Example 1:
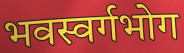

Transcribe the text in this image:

भवस्वर्गभोग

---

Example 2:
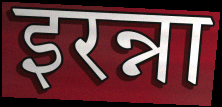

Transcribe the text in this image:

इरन्ना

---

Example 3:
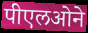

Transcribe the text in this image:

पीएलओने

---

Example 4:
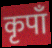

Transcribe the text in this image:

कृपाँ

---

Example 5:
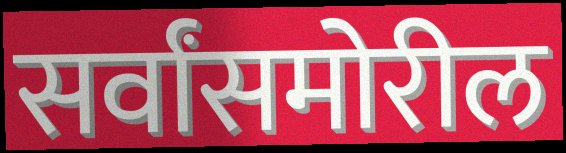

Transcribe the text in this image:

सर्वांसमोरील